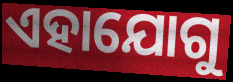
ଏହାଯୋଗୁ